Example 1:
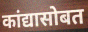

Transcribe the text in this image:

कांद्यासोबत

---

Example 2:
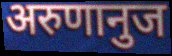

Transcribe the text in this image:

अरुणानुज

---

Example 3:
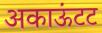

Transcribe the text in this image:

अकाऊंटट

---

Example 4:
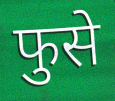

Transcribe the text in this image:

फुसे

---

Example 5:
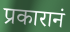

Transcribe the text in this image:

प्रकारानं